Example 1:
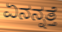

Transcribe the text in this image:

ಏನನ್ನತ್ತೆ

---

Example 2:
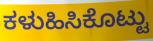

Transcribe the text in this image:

ಕಳುಹಿಸಿಕೊಟ್ಟು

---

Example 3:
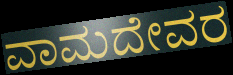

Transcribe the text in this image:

ವಾಮದೇವರ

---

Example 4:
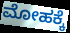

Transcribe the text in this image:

ಮೋಹಕ್ಕೆ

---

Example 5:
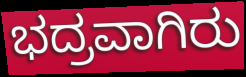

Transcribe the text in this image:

ಭದ್ರವಾಗಿರು